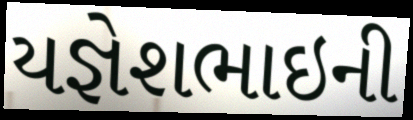
યજ્ઞેશભાઇની